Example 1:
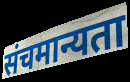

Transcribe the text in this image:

संचमान्यता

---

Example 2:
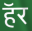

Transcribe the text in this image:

हॅर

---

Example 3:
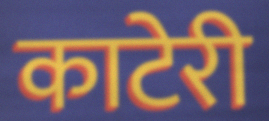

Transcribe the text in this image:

काटेरी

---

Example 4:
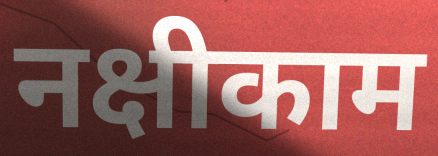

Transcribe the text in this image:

नक्षीकाम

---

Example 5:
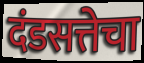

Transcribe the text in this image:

दंडसत्तेचा